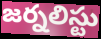
జర్నలిస్టు